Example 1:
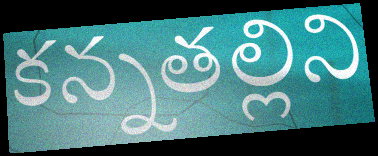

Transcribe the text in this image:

కన్నతల్లిని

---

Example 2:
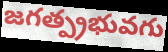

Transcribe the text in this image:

జగత్ప్రభువగు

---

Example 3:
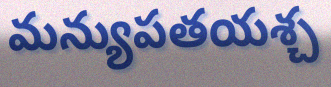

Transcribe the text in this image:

మన్యుపతయశ్చ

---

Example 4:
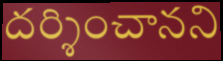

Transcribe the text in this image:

దర్శించానని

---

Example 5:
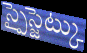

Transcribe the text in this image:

స్పైస్జెట్కు